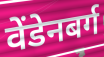
वेंडेनबर्ग